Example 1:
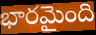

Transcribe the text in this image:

భారమైంది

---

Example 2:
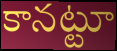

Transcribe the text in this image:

కానట్టూ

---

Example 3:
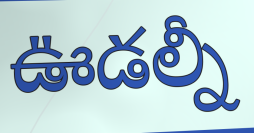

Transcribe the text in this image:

ఊడల్నీ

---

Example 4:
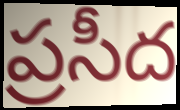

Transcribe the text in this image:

ప్రసీద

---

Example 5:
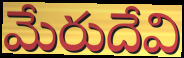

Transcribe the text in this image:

మేరుదేవి